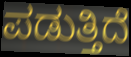
ಪಡುತ್ತಿದೆ